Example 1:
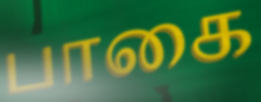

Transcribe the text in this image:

பாகை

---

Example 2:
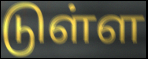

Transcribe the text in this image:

டுள்ள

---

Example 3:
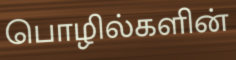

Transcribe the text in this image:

பொழில்களின்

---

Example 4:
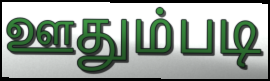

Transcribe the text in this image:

ஊதும்படி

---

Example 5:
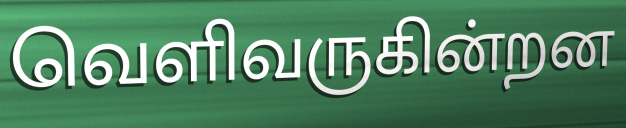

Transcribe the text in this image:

வெளிவருகின்றன